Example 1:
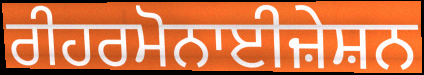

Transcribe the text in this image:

ਰੀਹਰਮੋਨਾਈਜ਼ੇਸ਼ਨ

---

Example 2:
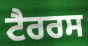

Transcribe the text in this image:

ਟੈਰਰਸ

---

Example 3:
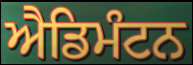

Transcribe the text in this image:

ਐਡਿਮੰਟਨ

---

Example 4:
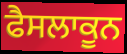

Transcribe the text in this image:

ਫੈਸਲਾਕੂਨ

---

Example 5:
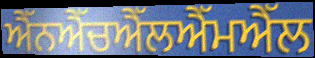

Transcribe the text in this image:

ਐੱਨਐੱਚਐੱਲਐੱਮਐੱਲ